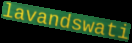
lavandswati